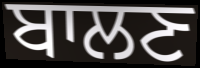
ਬਾਲਣ